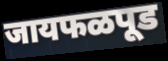
जायफळपूड